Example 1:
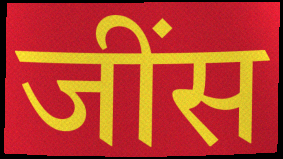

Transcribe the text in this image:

जींस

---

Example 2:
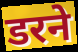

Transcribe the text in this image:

डरने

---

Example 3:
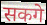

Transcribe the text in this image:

सकगे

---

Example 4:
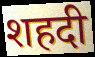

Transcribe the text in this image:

शहदी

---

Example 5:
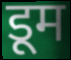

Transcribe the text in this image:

डूम